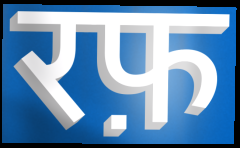
रफ़